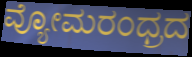
ವ್ಯೋಮರಂಧ್ರದ